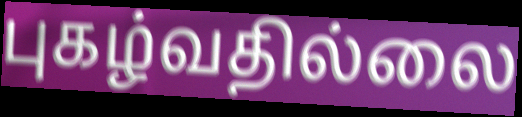
புகழ்வதில்லை